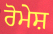
ਰੋਮੇਸ਼